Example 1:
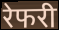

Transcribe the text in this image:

रेफरी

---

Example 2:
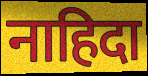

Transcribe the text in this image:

नाहिदा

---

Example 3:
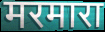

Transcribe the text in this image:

मरमारा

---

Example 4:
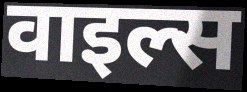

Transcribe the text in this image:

वाइल्स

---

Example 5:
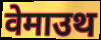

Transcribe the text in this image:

वेमाउथ